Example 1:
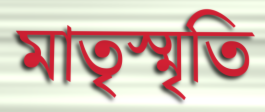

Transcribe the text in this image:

মাতৃস্মৃতি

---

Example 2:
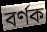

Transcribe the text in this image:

বর্ণক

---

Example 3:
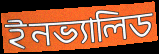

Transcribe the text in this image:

ইনভ্যালিড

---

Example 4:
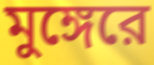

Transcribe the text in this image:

মুঙ্গেরে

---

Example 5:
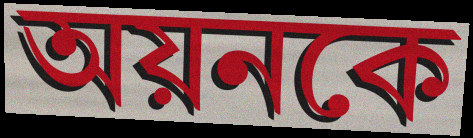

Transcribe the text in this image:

অয়নকে